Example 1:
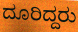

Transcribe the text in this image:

ದೂರಿದ್ದರು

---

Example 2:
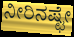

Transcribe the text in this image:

ನೀರಿನಷ್ಟೇ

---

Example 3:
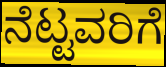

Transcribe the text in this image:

ನೆಟ್ಟವರಿಗೆ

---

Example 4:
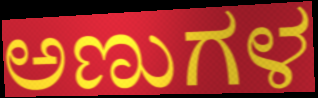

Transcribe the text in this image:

ಅಣುಗಳ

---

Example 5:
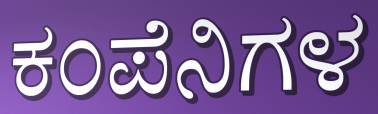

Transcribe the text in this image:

ಕಂಪೆನಿಗಳ